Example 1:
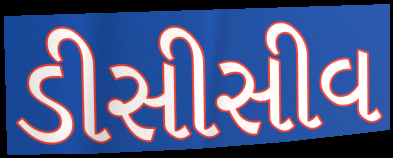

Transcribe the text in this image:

ડીસીસીવ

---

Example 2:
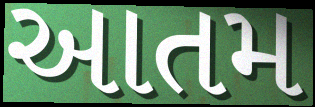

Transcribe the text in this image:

આતમ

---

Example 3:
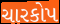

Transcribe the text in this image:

ચારકોપ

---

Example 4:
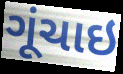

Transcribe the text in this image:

ગૂંચાઇ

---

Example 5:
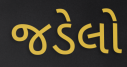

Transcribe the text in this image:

જડેલો